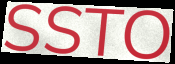
SSTO